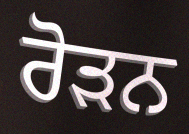
ਰੋੜਨ